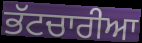
ਭੱਟਚਾਰੀਆ